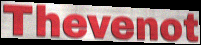
Thevenot